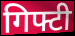
गिफ्टी